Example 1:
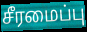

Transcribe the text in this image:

சீரமைப்பு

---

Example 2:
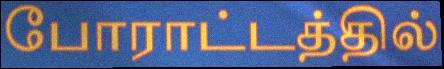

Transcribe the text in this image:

போராட்டத்தில்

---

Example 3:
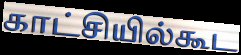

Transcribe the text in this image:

காட்சியில்கூட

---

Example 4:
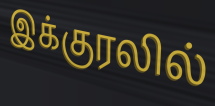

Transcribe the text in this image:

இக்குரலில்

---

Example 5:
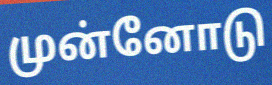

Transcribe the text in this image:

முன்னோடு